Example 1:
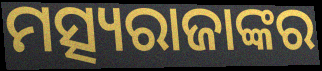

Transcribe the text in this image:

ମତ୍ସ୍ୟରାଜାଙ୍କର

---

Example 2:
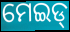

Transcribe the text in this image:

ମେଇଡ୍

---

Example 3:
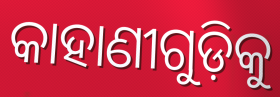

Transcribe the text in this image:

କାହାଣୀଗୁଡ଼ିକୁ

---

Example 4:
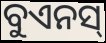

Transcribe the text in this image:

ବୁଏନସ୍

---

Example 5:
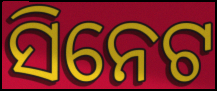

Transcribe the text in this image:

ସିନେଟ